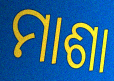
ମାଶା